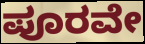
ಪೂರವೇ